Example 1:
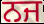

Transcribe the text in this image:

ਨਜ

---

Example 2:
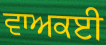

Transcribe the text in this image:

ਵਾਅਕਈ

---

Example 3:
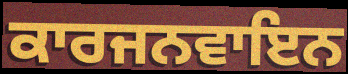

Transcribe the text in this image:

ਕਾਰਜਨਵਾਇਨ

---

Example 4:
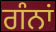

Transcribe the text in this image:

ਗੰਨਾਂ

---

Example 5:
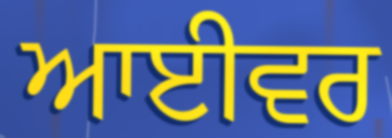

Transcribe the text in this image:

ਆਈਵਰ